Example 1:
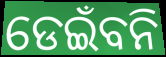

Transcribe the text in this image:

ଡେଇଁବନି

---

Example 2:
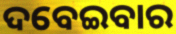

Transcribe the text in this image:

ଦବେଇବାର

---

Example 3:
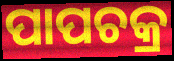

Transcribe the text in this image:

ପାପଚକ୍ର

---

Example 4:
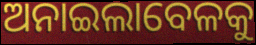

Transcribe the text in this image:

ଅନାଇଲାବେଳକୁ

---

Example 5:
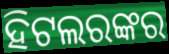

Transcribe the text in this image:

ହିଟଲରଙ୍କର